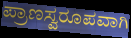
ಪ್ರಾಣಸ್ವರೂಪವಾಗಿ